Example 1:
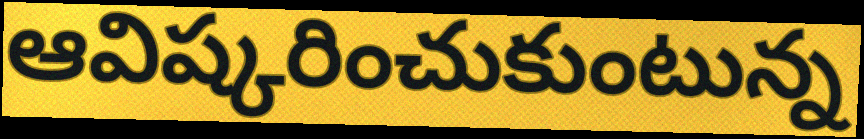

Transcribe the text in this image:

ఆవిష్కరించుకుంటున్న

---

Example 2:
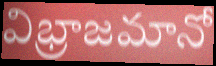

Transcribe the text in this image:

విభ్రాజమానో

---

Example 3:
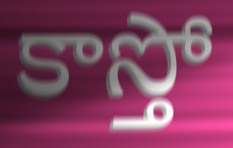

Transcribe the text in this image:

కాస్తో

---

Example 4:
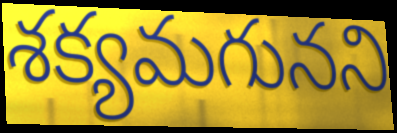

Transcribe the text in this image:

శక్యమగునని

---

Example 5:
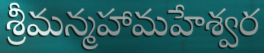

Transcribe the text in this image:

శ్రీమన్మహామహేశ్వర